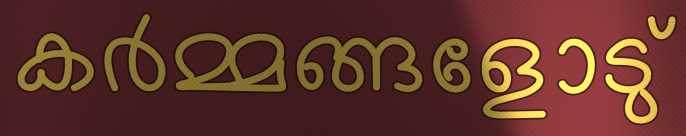
കർമ്മങ്ങളോടു്